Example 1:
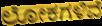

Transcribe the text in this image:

ಲೋಕಗಳಿವೆ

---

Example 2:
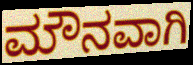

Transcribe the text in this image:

ಮೌನವಾಗಿ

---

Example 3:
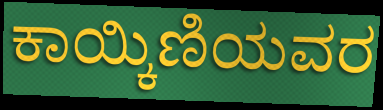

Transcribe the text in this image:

ಕಾಯ್ಕಿಣಿಯವರ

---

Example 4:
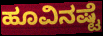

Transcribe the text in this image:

ಹೂವಿನಷ್ಟೆ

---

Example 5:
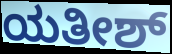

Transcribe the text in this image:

ಯತೀಶ್